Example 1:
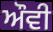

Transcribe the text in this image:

ਔਵੀ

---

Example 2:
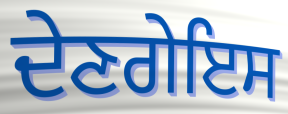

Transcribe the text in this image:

ਦੇਣਗੇਇਸ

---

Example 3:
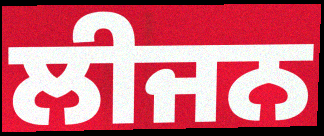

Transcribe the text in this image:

ਲੀਜਨ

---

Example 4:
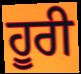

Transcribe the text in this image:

ਹੂਰੀ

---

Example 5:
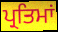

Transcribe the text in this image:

ਪ੍ਰਤਿਮਾਂ